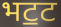
भट॒ट